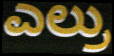
ಎಲ್ರು